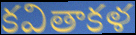
కవితాకళ